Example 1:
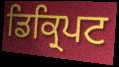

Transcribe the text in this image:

ਡਿਕ੍ਰਿਪਟ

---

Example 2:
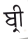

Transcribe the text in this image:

ਬ੍ਰੀ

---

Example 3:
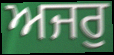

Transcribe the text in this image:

ਅਜਰੁ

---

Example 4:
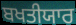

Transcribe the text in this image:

ਬਖਤੀਯਾਰ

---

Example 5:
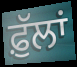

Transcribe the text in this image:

ਫ਼ੁੱਲਾਂ